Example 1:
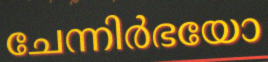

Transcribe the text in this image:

ചേന്നിർഭയോ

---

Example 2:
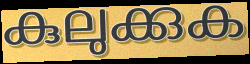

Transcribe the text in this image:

കുലുക്കുക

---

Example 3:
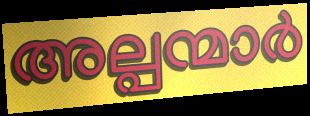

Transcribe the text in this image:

അല്പന്മാർ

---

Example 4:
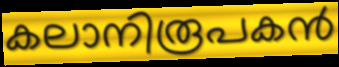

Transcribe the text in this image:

കലാനിരൂപകൻ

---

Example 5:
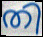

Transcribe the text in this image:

തി